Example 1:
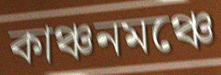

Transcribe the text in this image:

কাঞ্চনমঞ্চে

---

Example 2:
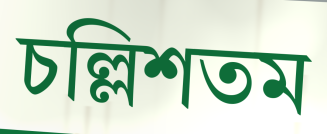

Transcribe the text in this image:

চল্লিশতম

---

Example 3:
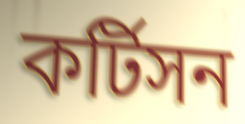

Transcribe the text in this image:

কর্টিসন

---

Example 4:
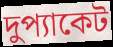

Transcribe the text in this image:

দুপ্যাকেট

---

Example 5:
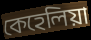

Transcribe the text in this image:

কেহেলিয়া